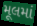
મૂલમાં